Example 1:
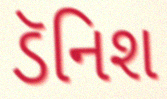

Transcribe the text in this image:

ડૅનિશ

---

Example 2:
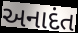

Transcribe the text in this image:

અનાદંત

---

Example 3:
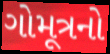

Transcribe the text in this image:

ગોમૂત્રનો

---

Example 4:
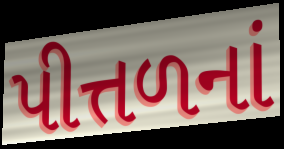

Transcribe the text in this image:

પીત્તળનાં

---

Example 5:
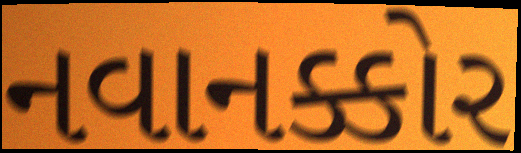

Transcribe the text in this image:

નવાનક્કોર